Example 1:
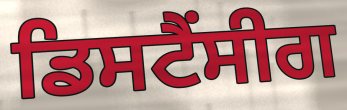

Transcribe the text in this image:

ਡਿਸਟੈਂਸੀਗ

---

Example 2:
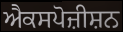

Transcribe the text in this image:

ਐਕਸਪੋਜ਼ੀਸ਼ਨ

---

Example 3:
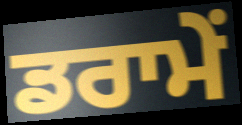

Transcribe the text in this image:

ਡਰਾਮੇਂ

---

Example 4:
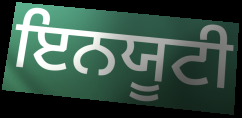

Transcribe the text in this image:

ਇਨਯੂਟੀ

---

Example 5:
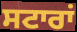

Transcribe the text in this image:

ਸਟਾਰਾਂ